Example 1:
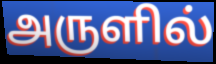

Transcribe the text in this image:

அருளில்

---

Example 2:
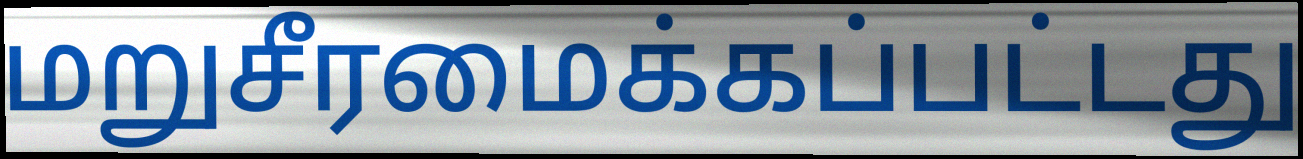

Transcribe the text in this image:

மறுசீரமைக்கப்பட்டது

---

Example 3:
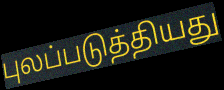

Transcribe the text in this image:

புலப்படுத்தியது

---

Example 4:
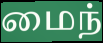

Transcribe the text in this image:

மைந்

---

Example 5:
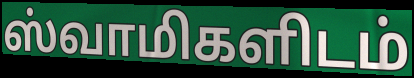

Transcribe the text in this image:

ஸ்வாமிகளிடம்